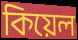
কিয়েল